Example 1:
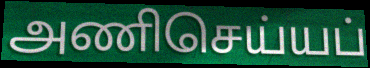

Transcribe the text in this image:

அணிசெய்யப்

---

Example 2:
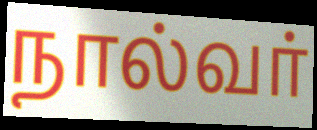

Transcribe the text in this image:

நால்வர்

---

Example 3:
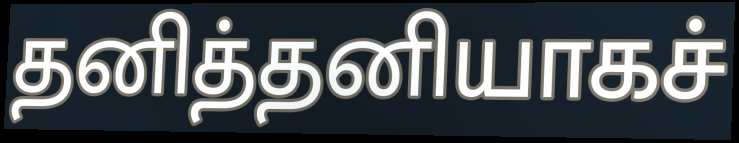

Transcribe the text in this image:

தனித்தனியாகச்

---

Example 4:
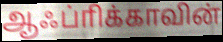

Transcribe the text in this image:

ஆஃப்ரிக்காவின்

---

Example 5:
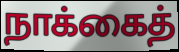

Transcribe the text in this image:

நாக்கைத்